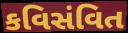
કવિસંવિત